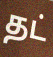
தட்